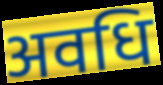
अवधि